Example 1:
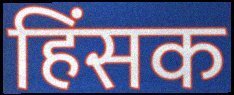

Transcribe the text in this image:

हिंसक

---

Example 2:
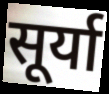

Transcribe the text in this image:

सूर्या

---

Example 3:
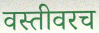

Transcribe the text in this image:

वस्तीवरच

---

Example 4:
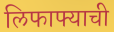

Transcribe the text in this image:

लिफाफ्याची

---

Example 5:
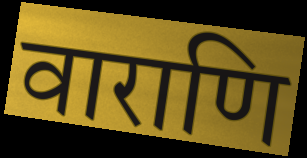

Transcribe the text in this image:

वाराणि